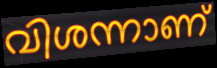
വിശന്നാണ്